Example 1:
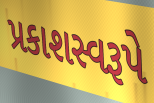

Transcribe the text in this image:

પ્રકાશસ્વરૂપે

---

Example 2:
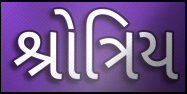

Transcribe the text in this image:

શ્રોત્રિય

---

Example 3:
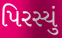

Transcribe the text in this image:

પિરસ્યું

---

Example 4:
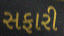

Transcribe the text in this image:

સફારી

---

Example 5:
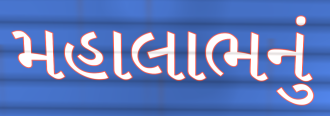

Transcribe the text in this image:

મહાલાભનું